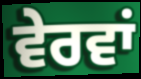
ਵੇਰਵਾਂ